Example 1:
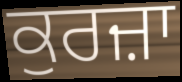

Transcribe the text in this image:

ਕੁਰਜ਼ਾ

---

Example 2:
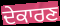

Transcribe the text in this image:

ਦੇਕਾਰਣ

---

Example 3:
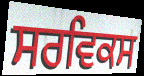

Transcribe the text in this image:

ਸਰਵਿਕਸ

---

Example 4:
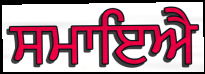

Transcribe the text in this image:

ਸਮਾਇਐ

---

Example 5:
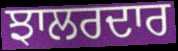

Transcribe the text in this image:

ਝਾਲਰਦਾਰ